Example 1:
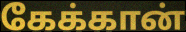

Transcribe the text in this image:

கேக்கான்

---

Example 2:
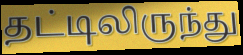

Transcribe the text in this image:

தட்டிலிருந்து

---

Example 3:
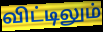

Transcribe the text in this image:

விட்டிலும்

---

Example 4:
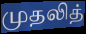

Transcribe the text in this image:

முதலித்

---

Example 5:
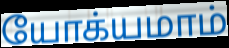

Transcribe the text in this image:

யோக்யமாம்